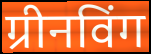
ग्रीनविंग